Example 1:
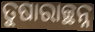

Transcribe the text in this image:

ତୁଷାରାଚ୍ଛନ୍ନ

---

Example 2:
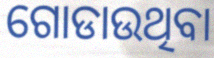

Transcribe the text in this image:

ଗୋଡାଉଥିବା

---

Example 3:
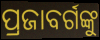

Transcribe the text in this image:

ପ୍ରଜାବର୍ଗଙ୍କୁ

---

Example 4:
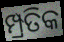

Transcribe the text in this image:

ମ୍ପ୍ରତିକ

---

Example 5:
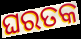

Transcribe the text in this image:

ଘରତକ